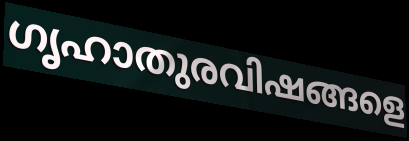
ഗൃഹാതുരവിഷങ്ങളെ